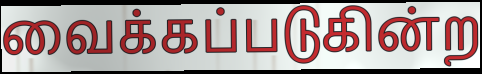
வைக்கப்படுகின்ற